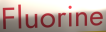
Fluorine